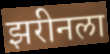
झरीनला